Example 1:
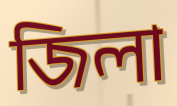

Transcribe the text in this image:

জিলা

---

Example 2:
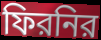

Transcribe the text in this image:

ফিরনির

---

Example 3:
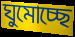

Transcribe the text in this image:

ঘুমোচ্ছে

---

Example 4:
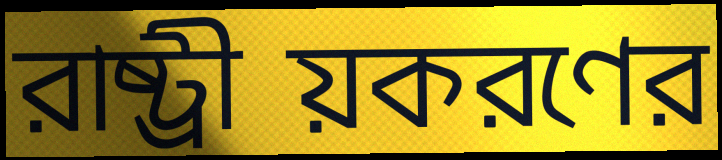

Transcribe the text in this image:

রাষ্ট্রীয়করণের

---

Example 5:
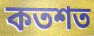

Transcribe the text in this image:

কতশত